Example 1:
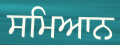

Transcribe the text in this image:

ਸਮਿਆਨ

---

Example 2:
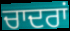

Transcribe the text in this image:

ਚਾਦਰਾਂ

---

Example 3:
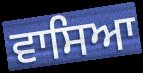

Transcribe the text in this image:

ਵਾਸਿਆ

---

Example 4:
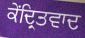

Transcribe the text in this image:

ਕੇਂਦ੍ਰਿਤਵਾਦ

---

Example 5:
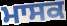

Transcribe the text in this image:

ਮਾਸਕ